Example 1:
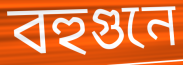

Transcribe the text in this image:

বহুগুনে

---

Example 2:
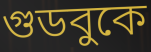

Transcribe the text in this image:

গুডবুকে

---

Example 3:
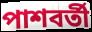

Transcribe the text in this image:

পাশবর্তী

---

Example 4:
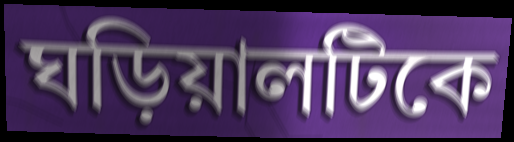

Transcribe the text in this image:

ঘড়িয়ালটিকে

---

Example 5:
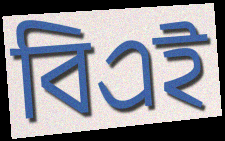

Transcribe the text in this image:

বিএই